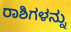
ರಾಶಿಗಳನ್ನು